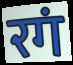
रगं